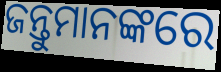
ଜନ୍ତୁମାନଙ୍କରେ